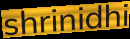
shrinidhi